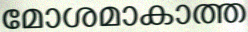
മോശമാകാത്ത